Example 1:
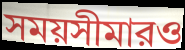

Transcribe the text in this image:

সময়সীমারও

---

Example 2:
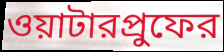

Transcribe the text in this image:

ওয়াটারপ্রুফের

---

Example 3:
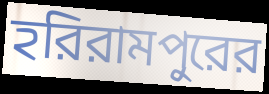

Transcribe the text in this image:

হরিরামপুরের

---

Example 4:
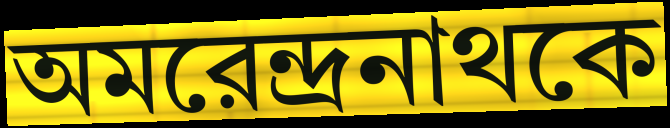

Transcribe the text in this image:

অমরেন্দ্রনাথকে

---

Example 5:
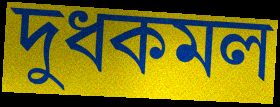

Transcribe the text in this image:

দুধকমল